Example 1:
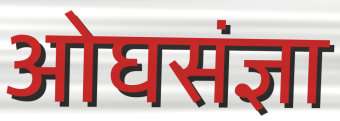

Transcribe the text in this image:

ओघसंज्ञा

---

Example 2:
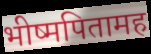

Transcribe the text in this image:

भीष्मपितामह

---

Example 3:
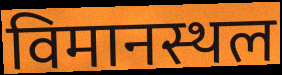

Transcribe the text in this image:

विमानस्थल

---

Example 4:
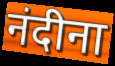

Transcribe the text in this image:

नंदीना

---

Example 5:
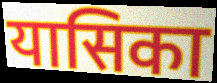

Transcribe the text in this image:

यासिका